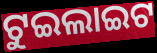
ଟୁଇଲାଇଟ